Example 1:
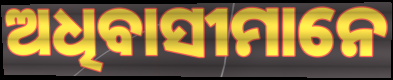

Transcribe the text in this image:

ଅଧିବାସୀମାନେ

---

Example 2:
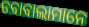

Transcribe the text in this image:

ଡବାବାଲାମାନେ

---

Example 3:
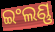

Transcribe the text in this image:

ଇଂଲଣ୍ଣ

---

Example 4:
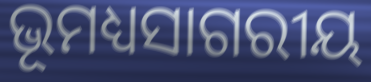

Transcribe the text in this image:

ଭୂମଧ୍ୟସାଗରୀୟ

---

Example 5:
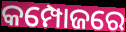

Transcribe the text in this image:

କମ୍ପୋଜରେ